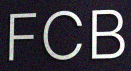
FCB